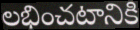
లభించటానికి